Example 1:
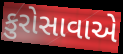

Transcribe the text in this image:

કુરોસાવાએ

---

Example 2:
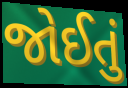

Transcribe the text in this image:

જોઈતું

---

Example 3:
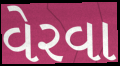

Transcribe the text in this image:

વેરવા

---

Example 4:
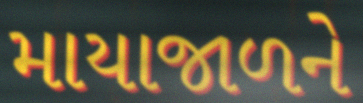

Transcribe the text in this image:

માયાજાળને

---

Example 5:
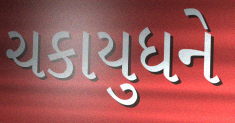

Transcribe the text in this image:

ચકાયુધને